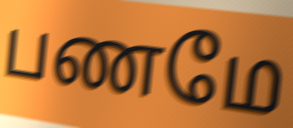
பணமே